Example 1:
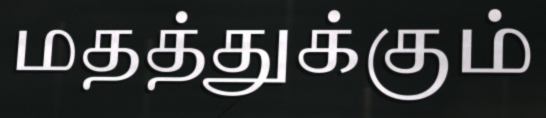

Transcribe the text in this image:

மதத்துக்கும்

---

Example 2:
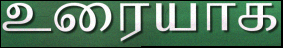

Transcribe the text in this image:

உரையாக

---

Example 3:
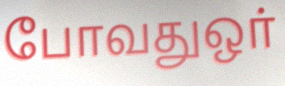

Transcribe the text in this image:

போவதுஒர்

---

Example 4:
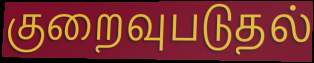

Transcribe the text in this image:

குறைவுபடுதல்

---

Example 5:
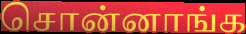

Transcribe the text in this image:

சொன்னாங்க